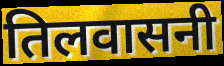
तिलवासनी